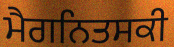
ਮੈਗਨਿਤਸਕੀ